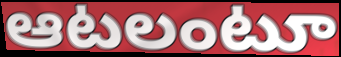
ఆటలంటూ